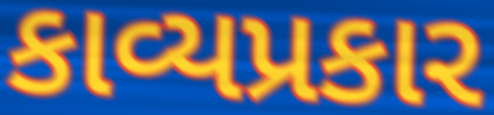
કાવ્યપ્રકાર